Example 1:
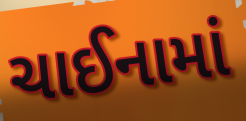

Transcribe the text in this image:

ચાઈનામાં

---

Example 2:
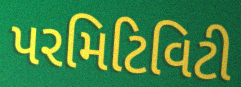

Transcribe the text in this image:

પરમિટિવિટી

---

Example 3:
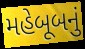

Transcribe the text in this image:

મહેબૂબનું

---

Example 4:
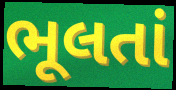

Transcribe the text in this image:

ભૂલતાં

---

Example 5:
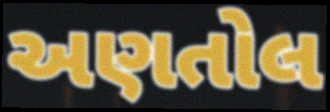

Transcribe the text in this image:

અણતોલ